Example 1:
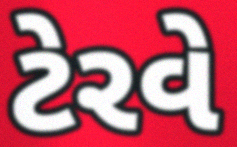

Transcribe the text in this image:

ટેરવે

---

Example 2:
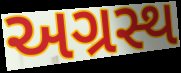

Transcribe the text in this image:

અગ્રસ્થ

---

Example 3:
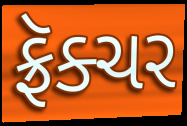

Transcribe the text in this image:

ફ્રૅક્ચર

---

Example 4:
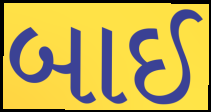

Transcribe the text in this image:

બાઈ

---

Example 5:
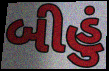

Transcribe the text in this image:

બીહું